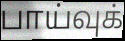
பாய்வுக்